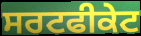
ਸਰਟਫੀਕੇਟ